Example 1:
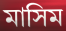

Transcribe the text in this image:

মাসিম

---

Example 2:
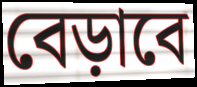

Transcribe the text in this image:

বেড়াবে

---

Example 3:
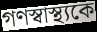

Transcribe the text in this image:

গণস্বাস্থ্যকে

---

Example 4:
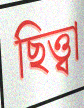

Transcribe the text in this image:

ছিত্ত্বা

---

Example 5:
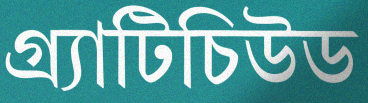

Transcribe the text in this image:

গ্র্যাটিচিউড